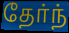
தேர்ந்